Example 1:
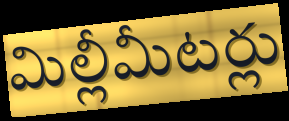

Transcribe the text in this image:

మిల్లీమీటర్లు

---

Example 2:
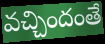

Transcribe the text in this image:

వచ్చిందంతే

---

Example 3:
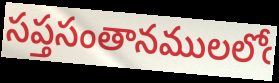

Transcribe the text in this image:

సప్తసంతానములలోఁ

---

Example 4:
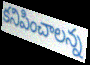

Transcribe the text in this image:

కనిపించాలన్న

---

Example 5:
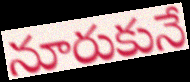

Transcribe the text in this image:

నూరుకునే